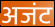
अजंट